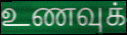
உணவுக்